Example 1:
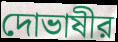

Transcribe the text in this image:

দোভাষীর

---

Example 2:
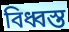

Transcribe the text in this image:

বিধ্বস্ত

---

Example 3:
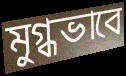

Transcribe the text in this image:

মুগ্ধভাবে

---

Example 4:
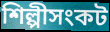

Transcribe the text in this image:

শিল্পীসংকট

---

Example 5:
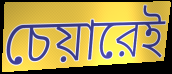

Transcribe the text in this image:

চেয়ারেই